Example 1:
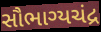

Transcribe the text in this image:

સૌભાગ્યચંદ્ર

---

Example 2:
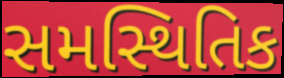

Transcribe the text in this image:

સમસ્થિતિક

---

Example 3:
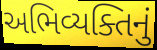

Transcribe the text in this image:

અભિવ્યક્તિનું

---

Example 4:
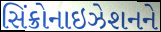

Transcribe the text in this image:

સિંક્રોનાઇઝેશનને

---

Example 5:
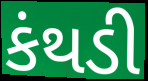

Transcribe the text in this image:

કંથડી